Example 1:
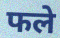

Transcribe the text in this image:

फले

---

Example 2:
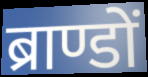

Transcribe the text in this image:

ब्राण्डों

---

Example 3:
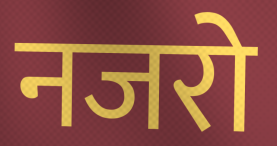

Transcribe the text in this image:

नजरो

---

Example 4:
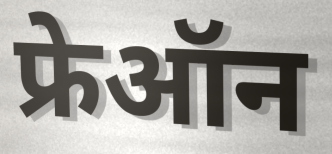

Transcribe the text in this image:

फ्रेऑन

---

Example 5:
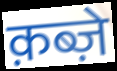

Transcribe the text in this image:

क़ब्ज़े